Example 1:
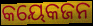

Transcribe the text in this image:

କୟେକଜନ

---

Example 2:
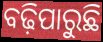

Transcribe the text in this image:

ବଢ଼ିପାରୁଛି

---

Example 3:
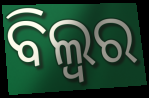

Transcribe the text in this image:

ବିଲ୍ୱର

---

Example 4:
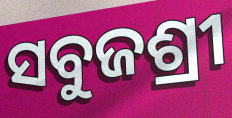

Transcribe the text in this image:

ସବୁଜଶ୍ରୀ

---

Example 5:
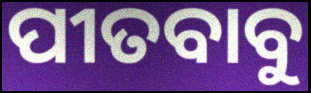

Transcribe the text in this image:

ପୀତବାବୁ